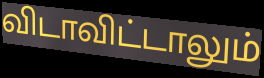
விடாவிட்டாலும்